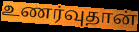
உணர்வுதான்